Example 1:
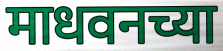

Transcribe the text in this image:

माधवनच्या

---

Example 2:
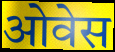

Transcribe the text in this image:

ओवेस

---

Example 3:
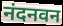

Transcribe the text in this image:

नंदनवन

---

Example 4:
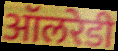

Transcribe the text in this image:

ऑलरेडी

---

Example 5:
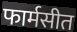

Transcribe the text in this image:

फार्मसीत